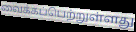
வைக்கப்பெற்றுள்ளது